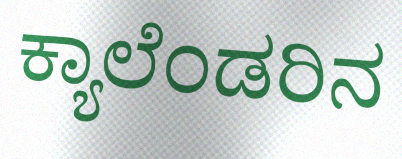
ಕ್ಯಾಲೆಂಡರಿನ